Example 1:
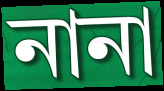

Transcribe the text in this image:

নানা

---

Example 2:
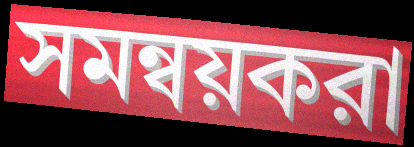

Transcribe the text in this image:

সমন্বয়করা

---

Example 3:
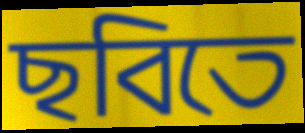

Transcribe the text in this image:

ছবিতে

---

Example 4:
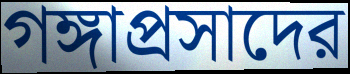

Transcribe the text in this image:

গঙ্গাপ্রসাদের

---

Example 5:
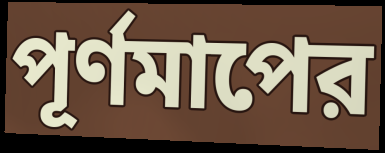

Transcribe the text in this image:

পূর্ণমাপের